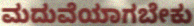
ಮದುವೆಯಾಗಬೇಕು